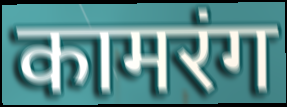
कामरंग